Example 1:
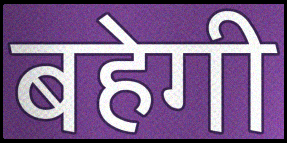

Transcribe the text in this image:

बहेगी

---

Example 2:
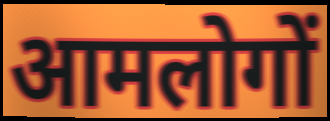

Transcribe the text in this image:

आमलोगों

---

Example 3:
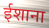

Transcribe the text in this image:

ईशाना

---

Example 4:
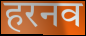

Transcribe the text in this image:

हरनव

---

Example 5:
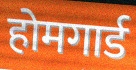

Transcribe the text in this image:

होमगार्ड